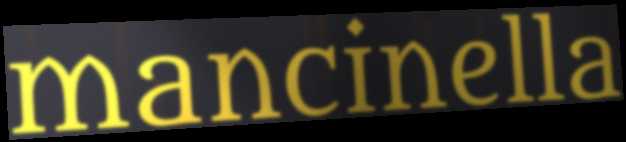
mancinella